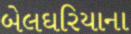
બેલઘરિયાના